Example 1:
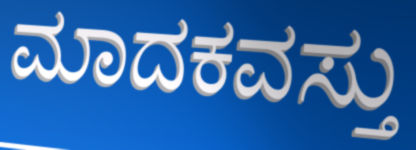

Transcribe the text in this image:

ಮಾದಕವಸ್ತು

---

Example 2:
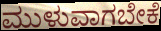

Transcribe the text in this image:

ಮುಳುವಾಗಬೇಕೆ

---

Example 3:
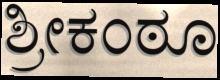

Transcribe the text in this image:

ಶ್ರೀಕಂಠೂ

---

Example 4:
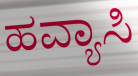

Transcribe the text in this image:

ಹವ್ಯಾಸಿ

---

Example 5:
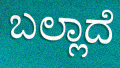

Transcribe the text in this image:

ಬಲ್ಲಾದೆ